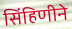
सिंहिणीने